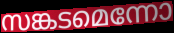
സങ്കടമെന്നോ